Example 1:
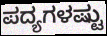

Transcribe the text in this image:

ಪದ್ಯಗಳಷ್ಟು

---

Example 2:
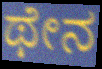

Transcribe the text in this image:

ಥೇನ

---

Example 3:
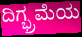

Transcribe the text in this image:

ದಿಗ್ಭ್ರಮೆಯ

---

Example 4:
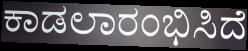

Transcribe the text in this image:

ಕಾಡಲಾರಂಭಿಸಿದೆ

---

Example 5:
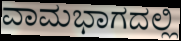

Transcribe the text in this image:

ವಾಮಭಾಗದಲ್ಲಿ